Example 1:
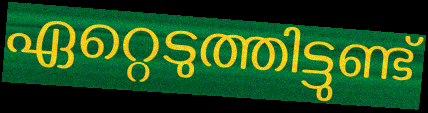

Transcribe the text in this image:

ഏറ്റെടുത്തിട്ടുണ്ട്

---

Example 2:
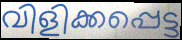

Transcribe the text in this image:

വിളിക്കപ്പെട്ട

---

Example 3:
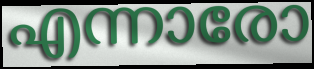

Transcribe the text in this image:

എന്നാരോ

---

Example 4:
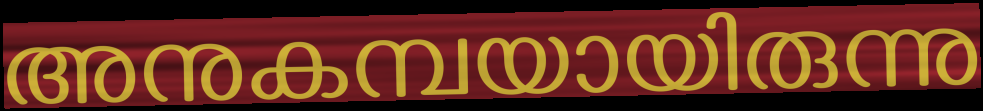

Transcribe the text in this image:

അനുകമ്പയായിരുന്നു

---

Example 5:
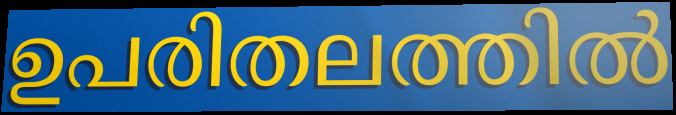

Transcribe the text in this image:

ഉപരിതലത്തിൽ